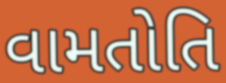
વામતોતિ